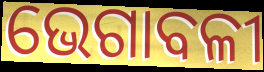
ଭେଗାବଳୀ